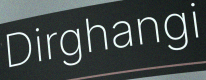
Dirghangi